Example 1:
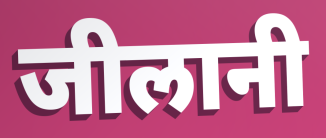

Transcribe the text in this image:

जीलानी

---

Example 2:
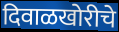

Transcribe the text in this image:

दिवाळखोरीचे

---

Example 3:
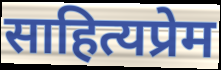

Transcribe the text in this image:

साहित्यप्रेम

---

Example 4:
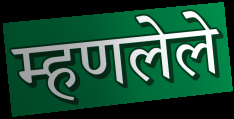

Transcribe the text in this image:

म्हणलेले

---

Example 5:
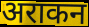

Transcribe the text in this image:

अराकन